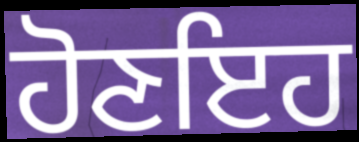
ਹੋਣਇਹ